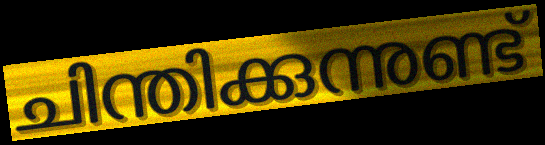
ചിന്തിക്കുന്നുണ്ട്